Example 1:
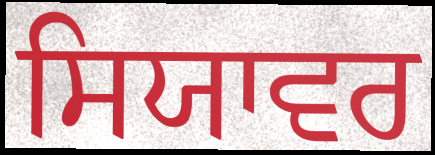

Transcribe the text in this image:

ਸਿਯਾਵਰ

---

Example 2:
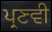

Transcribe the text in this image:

ਪ੍ਰਣਵੀ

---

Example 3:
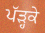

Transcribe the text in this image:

ਪੱੜ੍ਹਕੇ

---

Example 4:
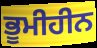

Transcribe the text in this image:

ਭੂਮੀਹੀਨ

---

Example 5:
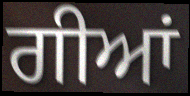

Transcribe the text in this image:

ਗੀਆਂ